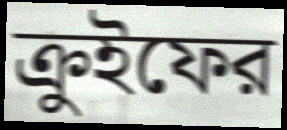
ক্রুইফের